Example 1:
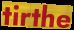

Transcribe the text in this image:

tirthe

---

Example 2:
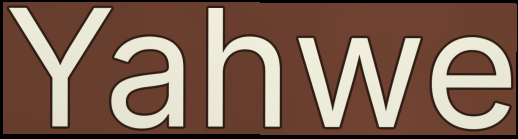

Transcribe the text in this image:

Yahwe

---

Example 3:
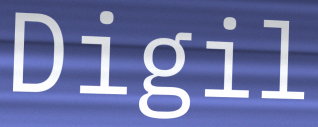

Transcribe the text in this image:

Digil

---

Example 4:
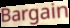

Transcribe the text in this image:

Bargain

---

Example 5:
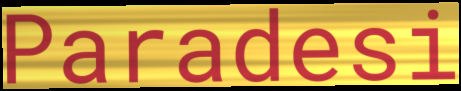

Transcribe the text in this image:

Paradesi